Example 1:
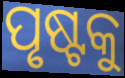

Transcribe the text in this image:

ପୃଷ୍ଟକୁ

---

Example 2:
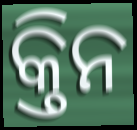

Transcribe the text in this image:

କ୍ତିନ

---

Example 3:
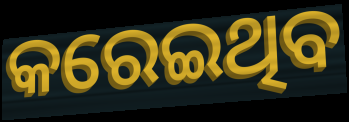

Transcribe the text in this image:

କରେଇଥିବ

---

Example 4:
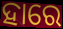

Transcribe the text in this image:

ହାରେ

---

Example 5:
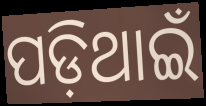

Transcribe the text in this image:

ପଡ଼ିଥାଇଁ